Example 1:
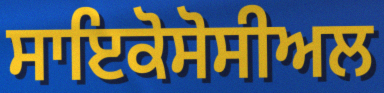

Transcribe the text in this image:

ਸਾਇਕੋਸੋਸੀਅਲ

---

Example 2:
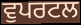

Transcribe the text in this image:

ਵੁਪਰਟਲ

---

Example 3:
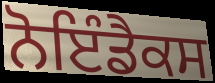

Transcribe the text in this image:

ਨੋਇੰਡੈਕਸ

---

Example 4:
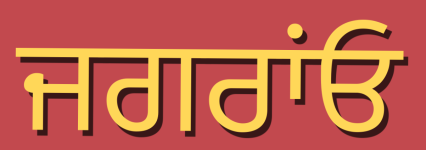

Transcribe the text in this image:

ਜਗਰਾਂਓ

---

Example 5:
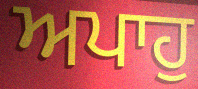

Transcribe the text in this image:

ਅਪਾਹੁ